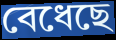
বেধেছে